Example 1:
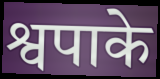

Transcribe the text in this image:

श्वपाके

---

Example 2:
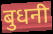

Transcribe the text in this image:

बुधनी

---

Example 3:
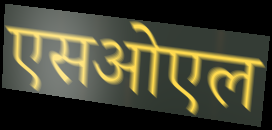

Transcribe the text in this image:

एसओएल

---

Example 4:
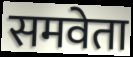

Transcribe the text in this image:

समवेता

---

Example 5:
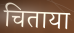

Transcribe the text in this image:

चिताया